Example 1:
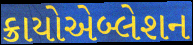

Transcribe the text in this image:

ક્રાયોએબ્લેશન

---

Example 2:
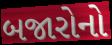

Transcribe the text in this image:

બજારોનો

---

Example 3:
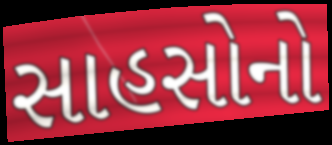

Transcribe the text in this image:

સાહસોનો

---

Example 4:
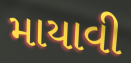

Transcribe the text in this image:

માયાવી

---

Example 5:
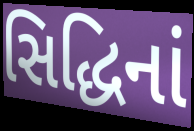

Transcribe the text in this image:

સિદ્ધિનાં